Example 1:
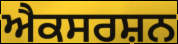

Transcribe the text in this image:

ਐਕਸਰਸ਼ਨ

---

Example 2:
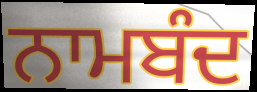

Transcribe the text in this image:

ਨਾਮਬੰਦ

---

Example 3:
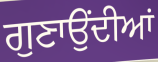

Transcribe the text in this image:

ਗੁਣਾਉਂਦੀਆਂ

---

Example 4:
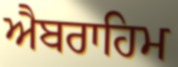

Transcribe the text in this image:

ਐਬਰਾਹਿਮ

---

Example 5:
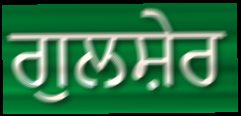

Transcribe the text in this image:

ਗੁਲਸ਼ੇਰ